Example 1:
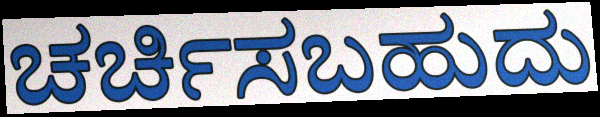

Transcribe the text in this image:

ಚರ್ಚಿಸಬಹುದು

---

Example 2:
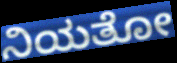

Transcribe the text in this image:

ನಿಯತೋ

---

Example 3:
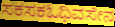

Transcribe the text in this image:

ಸಕಸಕಓಧಿವಸೇನ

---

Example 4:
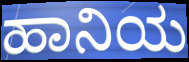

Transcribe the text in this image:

ಹಾನಿಯ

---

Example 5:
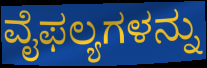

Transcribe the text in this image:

ವೈಫಲ್ಯಗಳನ್ನು